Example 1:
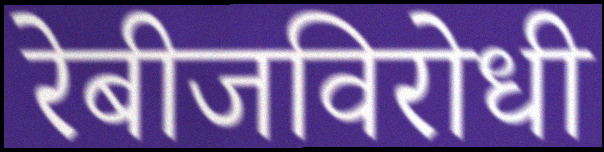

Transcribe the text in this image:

रेबीजविरोधी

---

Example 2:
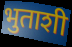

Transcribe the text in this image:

भुताशी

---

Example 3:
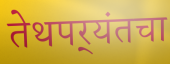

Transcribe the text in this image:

तेथपर्यंतचा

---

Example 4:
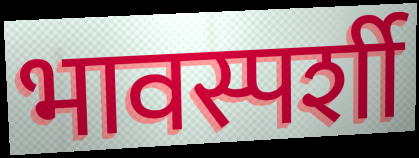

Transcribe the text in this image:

भावस्पर्शी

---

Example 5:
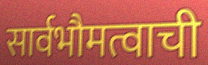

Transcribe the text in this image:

सार्वभौमत्वाची